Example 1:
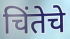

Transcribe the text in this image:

चिंतेचे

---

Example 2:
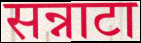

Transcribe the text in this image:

सन्नाटा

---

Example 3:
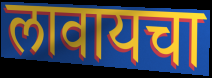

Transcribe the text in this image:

लावायचा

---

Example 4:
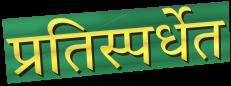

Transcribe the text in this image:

प्रतिस्पर्धेत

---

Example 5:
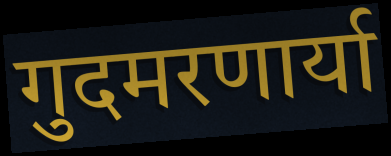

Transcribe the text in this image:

गुदमरणार्या